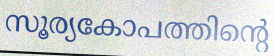
സൂര്യകോപത്തിന്റെ